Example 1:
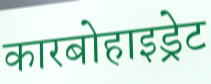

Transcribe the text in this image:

कारबोहाइड्रेट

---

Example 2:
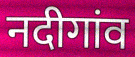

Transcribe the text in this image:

नदीगांव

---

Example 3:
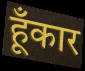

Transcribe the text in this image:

हूँकार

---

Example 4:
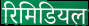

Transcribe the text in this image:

रिमिडियल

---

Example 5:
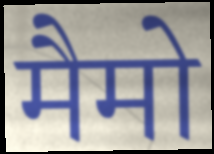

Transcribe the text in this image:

मैमो